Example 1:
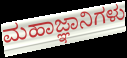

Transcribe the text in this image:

ಮಹಾಜ್ಞಾನಿಗಳು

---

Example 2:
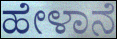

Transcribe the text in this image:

ಹೇಳಾನೆ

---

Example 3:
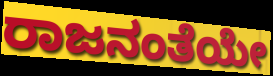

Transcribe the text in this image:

ರಾಜನಂತೆಯೇ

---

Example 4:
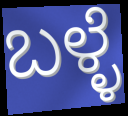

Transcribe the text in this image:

ಬಳ್ಳೆ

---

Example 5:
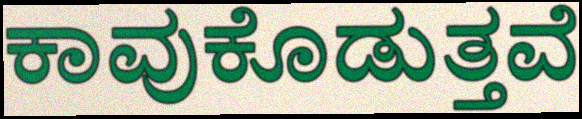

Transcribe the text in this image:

ಕಾವುಕೊಡುತ್ತವೆ